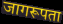
जागरूपता